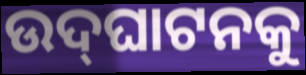
ଉଦ୍‌ଘାଟନକୁ